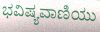
ಭವಿಷ್ಯವಾಣಿಯು